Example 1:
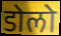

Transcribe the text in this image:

डोलो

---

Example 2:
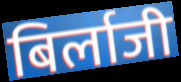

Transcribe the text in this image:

बिर्लाजी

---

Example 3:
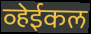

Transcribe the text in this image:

व्हेईकल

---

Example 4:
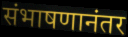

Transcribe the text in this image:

संभाषणानंतर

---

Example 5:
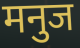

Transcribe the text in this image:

मनुज